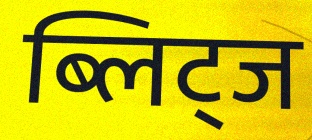
ब्लिट्ज